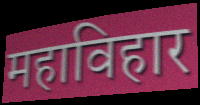
महाविहार